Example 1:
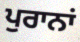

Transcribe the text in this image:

ਪੁਰਾਨਾਂ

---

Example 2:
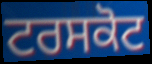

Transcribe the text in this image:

ਟਰਸਕੋਟ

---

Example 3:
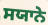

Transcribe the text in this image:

ਸਯਾਨੇ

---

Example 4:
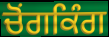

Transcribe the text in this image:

ਚੋਂਗਕਿੰਗ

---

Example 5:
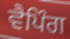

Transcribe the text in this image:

ਵੈਪਿੰਗ